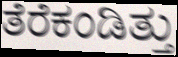
ತೆರೆಕಂಡಿತ್ತು